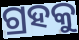
ଗ୍ରହକୁ